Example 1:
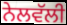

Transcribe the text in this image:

ਨੇਲਵੱਲੀ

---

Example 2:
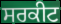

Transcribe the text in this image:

ਸਰਕੀਟ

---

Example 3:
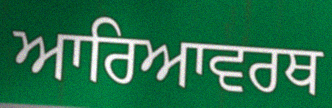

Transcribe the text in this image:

ਆਰਿਆਵਰਥ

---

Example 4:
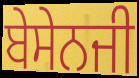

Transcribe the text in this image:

ਬੇਸੇਨਜੀ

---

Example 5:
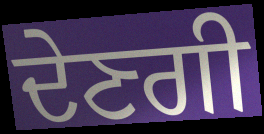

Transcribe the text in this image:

ਦੇਣਗੀ